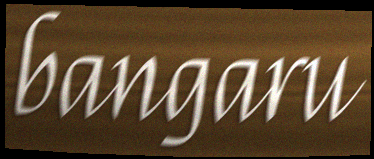
bangaru